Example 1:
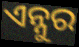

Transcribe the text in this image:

ଏନ୍ନୁର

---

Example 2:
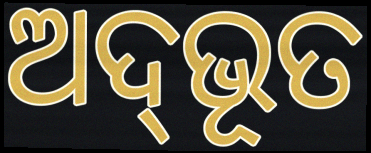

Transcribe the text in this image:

ଅଦ୍‌ଭୂତ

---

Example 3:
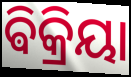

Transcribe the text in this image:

ଵିକ୍ରିୟା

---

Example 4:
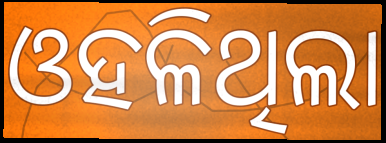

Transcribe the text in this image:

ଓହଳିଥିଲା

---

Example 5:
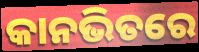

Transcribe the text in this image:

କାନଭିତରେ